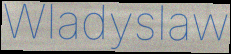
Wladyslaw